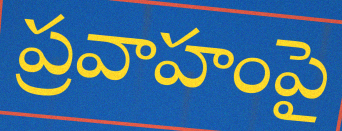
ప్రవాహంపై